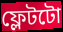
ফ্লেটটো